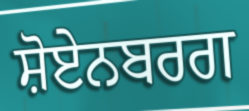
ਸ਼ੋਏਨਬਰਗ